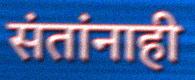
संतांनाही